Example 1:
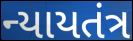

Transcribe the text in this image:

ન્યાયતંત્ર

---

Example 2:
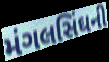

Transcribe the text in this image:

મંગલસિંઘની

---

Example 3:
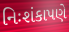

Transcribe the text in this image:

નિઃશંકાપણે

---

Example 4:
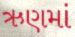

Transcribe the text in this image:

ઋણમાં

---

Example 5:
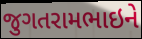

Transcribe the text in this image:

જુગતરામભાઇને